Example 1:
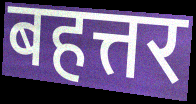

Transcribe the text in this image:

बहत्तर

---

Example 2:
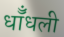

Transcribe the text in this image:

धॉँधली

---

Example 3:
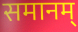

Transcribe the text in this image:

समानम्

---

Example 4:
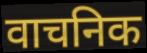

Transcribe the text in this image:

वाचनिक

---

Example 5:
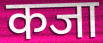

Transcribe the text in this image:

कजा